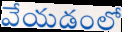
వేయడంలో